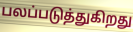
பலப்படுத்துகிறது